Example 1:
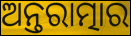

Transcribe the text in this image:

ଅନ୍ତରାତ୍ମାର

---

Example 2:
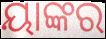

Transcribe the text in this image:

ୟାଙ୍କର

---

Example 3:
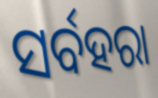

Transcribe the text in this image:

ସର୍ବହରା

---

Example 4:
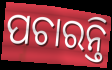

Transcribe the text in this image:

ପଚାରନ୍ତି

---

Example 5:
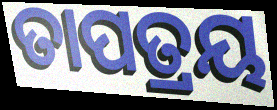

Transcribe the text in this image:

ତାପତ୍ରୟ